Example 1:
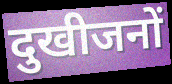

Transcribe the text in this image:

दुखीजनों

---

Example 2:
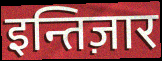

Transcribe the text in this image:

इन्तिज़ार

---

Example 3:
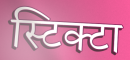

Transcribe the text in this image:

स्टिक्टा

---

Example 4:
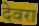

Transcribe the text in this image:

देवरा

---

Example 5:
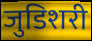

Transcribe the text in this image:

जुडिशरी